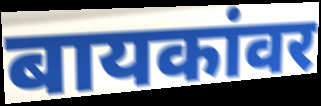
बायकांवर